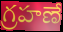
గ్రహణే